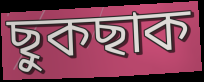
ছুকছাক